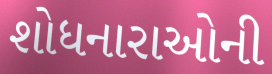
શોધનારાઓની